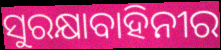
ସୁରକ୍ଷାବାହିନୀର